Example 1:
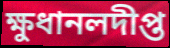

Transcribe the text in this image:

ক্ষুধানলদীপ্ত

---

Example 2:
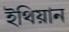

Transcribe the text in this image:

ইথিয়ান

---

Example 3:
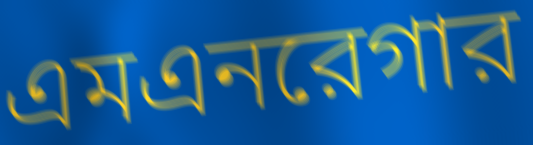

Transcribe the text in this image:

এমএনরেগার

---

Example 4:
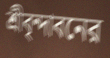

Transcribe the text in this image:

শ্রীবৃন্দাবনের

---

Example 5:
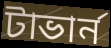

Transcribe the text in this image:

টাভার্ন